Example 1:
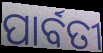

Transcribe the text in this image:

ପାର୍ବତୀ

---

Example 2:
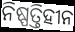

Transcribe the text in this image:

ନିଷ୍ପତ୍ତିହୀନ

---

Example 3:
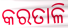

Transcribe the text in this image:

କରତାଳି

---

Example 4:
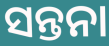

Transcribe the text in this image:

ସନ୍ତନା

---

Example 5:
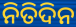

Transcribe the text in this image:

ନିତିଦିନ